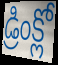
డ్రింక్లో